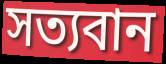
সত্যবান